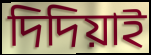
দিদিয়াই